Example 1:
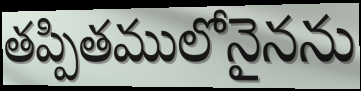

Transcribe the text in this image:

తప్పితములోనైనను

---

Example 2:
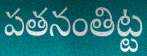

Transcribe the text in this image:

పతనంతిట్ట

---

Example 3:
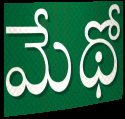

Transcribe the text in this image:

మేథో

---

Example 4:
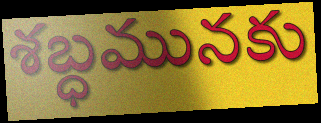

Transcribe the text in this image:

శబ్ధమునకు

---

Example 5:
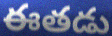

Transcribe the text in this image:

ఈతడు